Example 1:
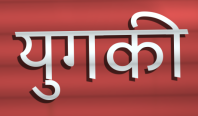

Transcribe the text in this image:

युगकी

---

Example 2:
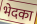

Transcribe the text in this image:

भेदका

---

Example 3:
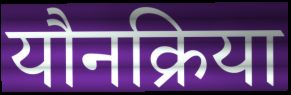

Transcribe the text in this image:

यौनक्रिया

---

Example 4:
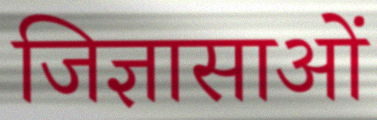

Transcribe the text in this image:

जिज्ञासाओं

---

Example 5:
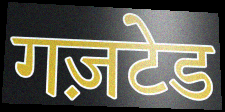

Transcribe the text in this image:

गज़टेड